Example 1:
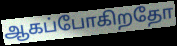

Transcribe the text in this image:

ஆகப்போகிறதோ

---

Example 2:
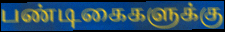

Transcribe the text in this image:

பண்டிகைகளுக்கு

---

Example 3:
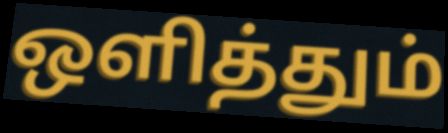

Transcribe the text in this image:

ஒளித்தும்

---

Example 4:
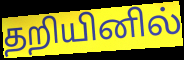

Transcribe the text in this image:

தறியினில்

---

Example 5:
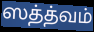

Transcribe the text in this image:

ஸத்த்வம்